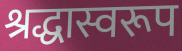
श्रद्धास्वरूप